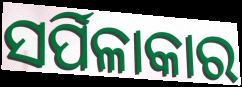
ସର୍ପିଳାକାର